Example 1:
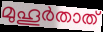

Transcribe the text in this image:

മുഹൂർതാത്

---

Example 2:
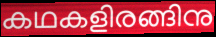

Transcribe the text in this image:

കഥകളിരങ്ങിനു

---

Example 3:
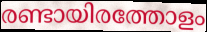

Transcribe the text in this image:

രണ്ടായിരത്തോളം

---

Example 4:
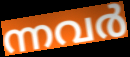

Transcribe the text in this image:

ന്നവർ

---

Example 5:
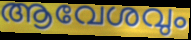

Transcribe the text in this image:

ആവേശവും